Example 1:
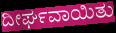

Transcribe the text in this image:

ದೀರ್ಘವಾಯಿತು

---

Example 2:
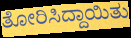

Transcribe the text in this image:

ತೋರಿಸಿದ್ದಾಯಿತು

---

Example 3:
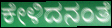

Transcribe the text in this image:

ಕೇಳಿದನಂತೆ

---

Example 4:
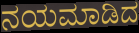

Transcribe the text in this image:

ನಯಮಾಡಿದ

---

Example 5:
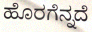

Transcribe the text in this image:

ಹೊರಗೆನ್ನದೆ